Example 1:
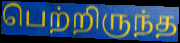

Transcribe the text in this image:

பெற்றிருந்த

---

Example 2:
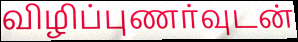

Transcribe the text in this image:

விழிப்புணர்வுடன்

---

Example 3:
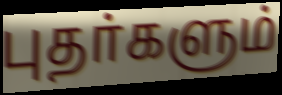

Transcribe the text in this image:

புதர்களும்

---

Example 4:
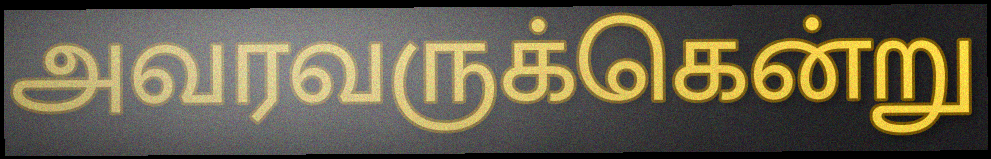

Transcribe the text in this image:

அவரவருக்கென்று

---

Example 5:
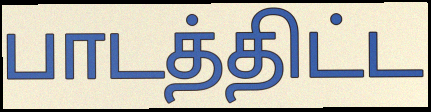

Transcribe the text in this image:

பாடத்திட்ட